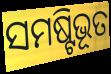
ସମଷ୍ଟିଭୂତ